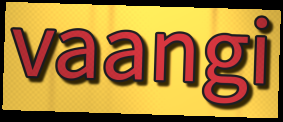
vaangi